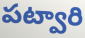
పట్వారి